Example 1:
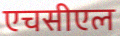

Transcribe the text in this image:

एचसीएल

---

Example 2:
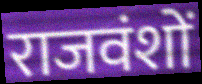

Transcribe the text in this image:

राजवंशों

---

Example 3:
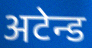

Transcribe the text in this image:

अटेन्ड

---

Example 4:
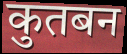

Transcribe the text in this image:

कुतबन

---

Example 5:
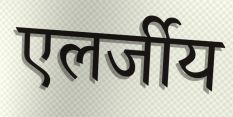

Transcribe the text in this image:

एलर्जीय